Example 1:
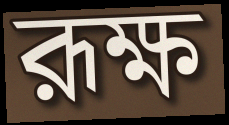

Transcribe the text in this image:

রূক্ষ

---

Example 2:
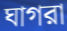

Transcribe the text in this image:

ঘাগরা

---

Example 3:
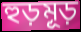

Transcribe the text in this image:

হুড়মূড়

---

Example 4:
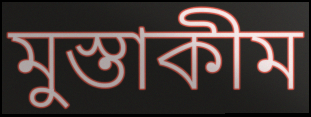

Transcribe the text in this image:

মুস্তাকীম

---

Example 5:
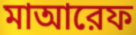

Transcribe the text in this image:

মাআরেফ